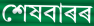
শেষবাৰৰ